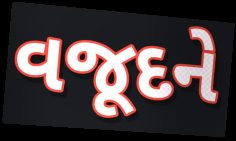
વજૂદને